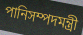
পানিসম্পদমন্ত্রী